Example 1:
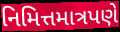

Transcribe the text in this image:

નિમિત્તમાત્રપણે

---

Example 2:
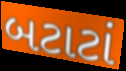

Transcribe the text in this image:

બટાટાં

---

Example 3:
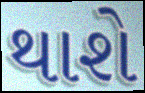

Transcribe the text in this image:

થાશે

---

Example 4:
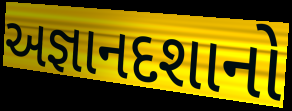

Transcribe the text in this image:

અજ્ઞાનદશાનો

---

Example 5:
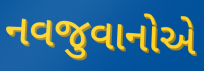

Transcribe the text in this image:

નવજુવાનોએ